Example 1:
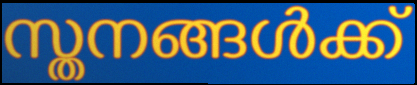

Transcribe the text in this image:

സ്തനങ്ങൾക്ക്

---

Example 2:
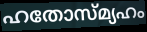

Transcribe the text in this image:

ഹതോസ്മ്യഹം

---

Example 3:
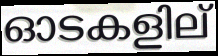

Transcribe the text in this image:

ഓടകളില്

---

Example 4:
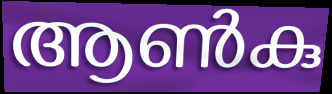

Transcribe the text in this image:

ആൺകു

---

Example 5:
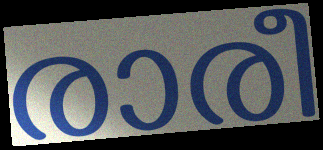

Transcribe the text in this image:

രാരീ